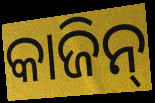
କାଜିନ୍